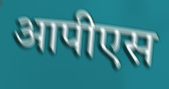
आपीएस